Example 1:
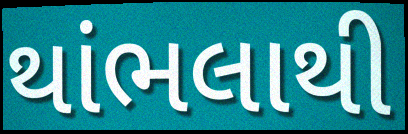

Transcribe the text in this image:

થાંભલાથી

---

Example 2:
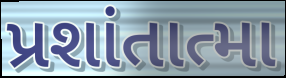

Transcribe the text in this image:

પ્રશાંતાત્મા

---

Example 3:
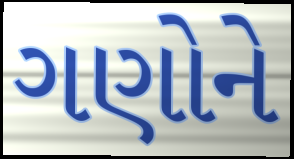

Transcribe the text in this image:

ગણોને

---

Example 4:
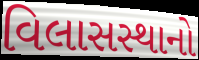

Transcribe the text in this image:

વિલાસસ્થાનો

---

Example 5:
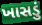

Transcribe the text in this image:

ખાસડું